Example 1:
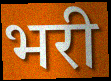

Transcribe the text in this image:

भरी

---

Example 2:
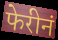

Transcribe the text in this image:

फेरीनं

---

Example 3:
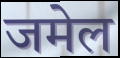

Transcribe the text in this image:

जमेल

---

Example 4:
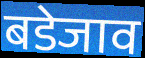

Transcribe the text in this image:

बडेजाव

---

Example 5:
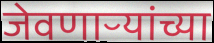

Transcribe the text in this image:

जेवणाऱ्यांच्या